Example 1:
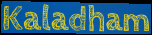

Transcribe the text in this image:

Kaladham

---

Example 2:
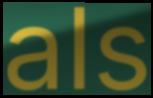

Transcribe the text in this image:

als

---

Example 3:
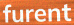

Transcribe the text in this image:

furent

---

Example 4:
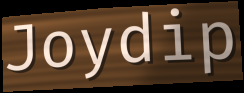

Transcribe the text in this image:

Joydip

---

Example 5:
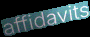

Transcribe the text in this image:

affidavits